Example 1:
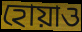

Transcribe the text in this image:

হোয়াও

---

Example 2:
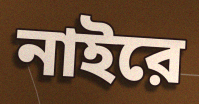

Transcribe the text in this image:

নাইরে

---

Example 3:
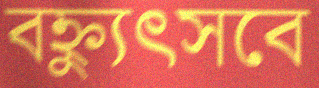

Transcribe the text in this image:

বহ্ন্যুৎসবে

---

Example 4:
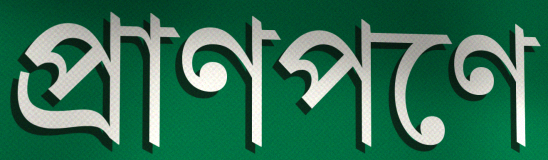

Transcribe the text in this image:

প্রাণপণে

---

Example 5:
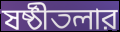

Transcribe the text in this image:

ষষ্ঠীতলার